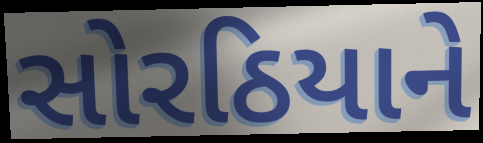
સોરઠિયાને